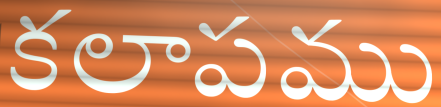
కలాపము